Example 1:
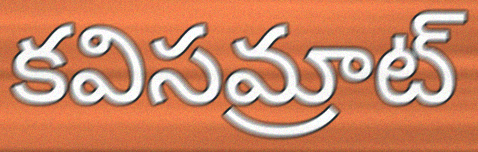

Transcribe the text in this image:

కవిసమ్రాట్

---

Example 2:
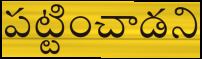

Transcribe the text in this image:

పట్టించాడని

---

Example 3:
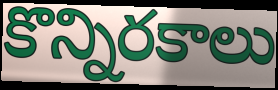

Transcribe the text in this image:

కొన్నిరకాలు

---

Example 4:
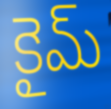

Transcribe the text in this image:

కైమ్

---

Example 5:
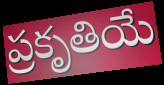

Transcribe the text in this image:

ప్రకృతియే